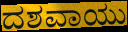
ದಶವಾಯು